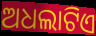
ଅଧଲାଟିଏ